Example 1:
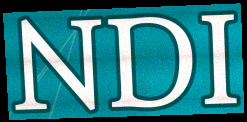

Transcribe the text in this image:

NDI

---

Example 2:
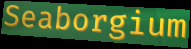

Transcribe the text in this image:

Seaborgium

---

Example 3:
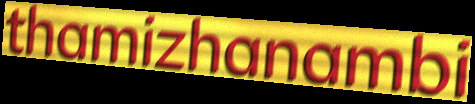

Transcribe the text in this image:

thamizhanambi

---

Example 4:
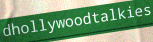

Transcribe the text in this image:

dhollywoodtalkies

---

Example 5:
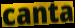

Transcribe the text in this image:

canta